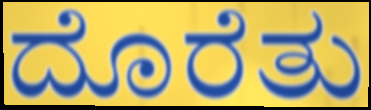
ದೊರೆತು